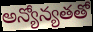
అన్యోన్యతతో